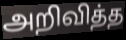
அறிவித்த